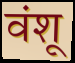
वंशू